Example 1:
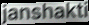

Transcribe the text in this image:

janshakti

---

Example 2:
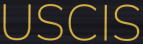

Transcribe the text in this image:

USCIS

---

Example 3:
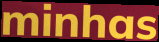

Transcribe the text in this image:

minhas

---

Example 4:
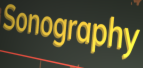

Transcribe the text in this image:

Sonography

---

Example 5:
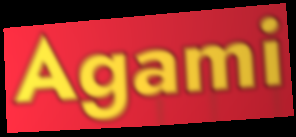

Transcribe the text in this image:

Agami